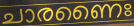
ചാരണൈഃ